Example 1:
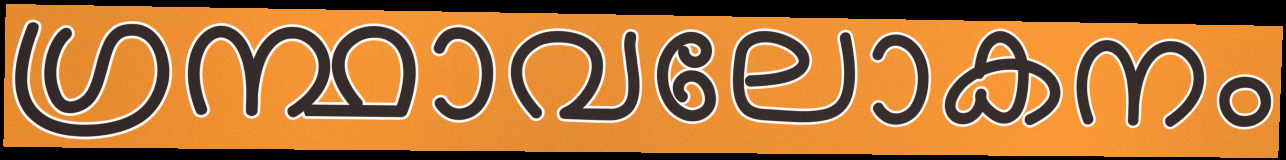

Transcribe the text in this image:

ഗ്രന്ഥാവലോകനം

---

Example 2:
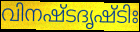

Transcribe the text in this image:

വിനഷ്ടദൃഷ്ടിഃ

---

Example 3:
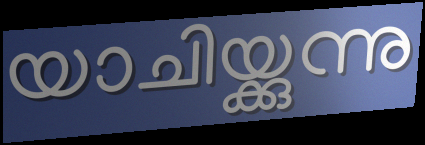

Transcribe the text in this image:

യാചിയ്ക്കുന്നു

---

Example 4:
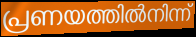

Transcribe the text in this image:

പ്രണയത്തിൽനിന്ന്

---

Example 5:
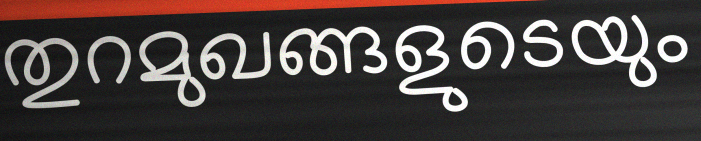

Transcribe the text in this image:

തുറമുഖങ്ങളുടെയും